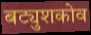
बट्युशकोव